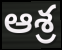
ఆశ్ర